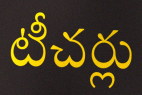
టీచర్లు